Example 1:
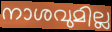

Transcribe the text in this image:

നാശവുമില്ല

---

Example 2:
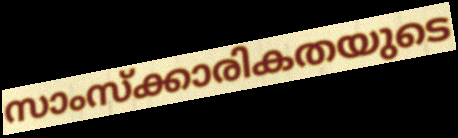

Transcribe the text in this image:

സാംസ്ക്കാരികതയുടെ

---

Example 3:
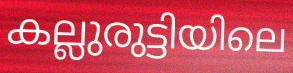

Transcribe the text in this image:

കല്ലുരുട്ടിയിലെ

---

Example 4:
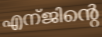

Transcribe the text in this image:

എന്ജിന്റെ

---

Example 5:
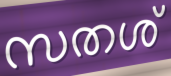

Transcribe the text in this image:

സതശ്